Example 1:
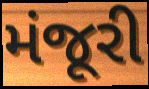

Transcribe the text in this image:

મંજૂરી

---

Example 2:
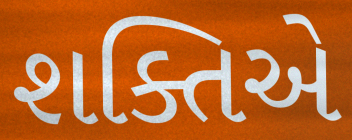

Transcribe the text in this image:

શક્તિએ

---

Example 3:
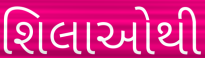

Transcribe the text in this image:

શિલાઓથી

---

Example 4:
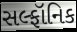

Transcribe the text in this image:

સલ્ફૉનિક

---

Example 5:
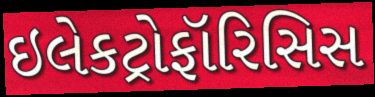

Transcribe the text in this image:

ઇલેકટ્રોફૉરિસિસ